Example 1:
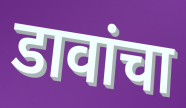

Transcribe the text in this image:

डावांचा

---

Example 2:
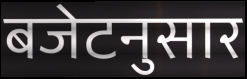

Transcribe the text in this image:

बजेटनुसार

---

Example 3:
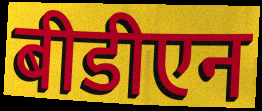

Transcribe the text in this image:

बीडीएन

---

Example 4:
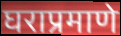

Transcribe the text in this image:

घराप्रमाणे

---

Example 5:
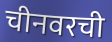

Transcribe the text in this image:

चीनवरची